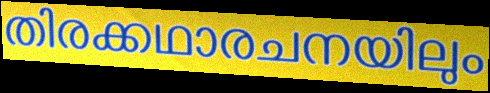
തിരക്കഥാരചനയിലും